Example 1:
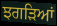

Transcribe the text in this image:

ਝਗੜਿਆਂ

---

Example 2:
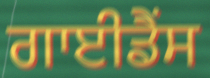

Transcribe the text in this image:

ਗਾਈਡੈਂਸ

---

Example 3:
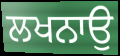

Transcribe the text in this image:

ਲਖਨਾਉ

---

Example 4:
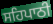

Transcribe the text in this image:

ਸਹਿਪਾਠੀ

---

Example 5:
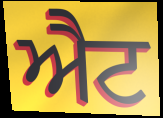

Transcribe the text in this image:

ਐਟ